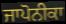
ਜਾਪੋਨੀਕਾ